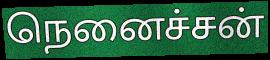
நெனைச்சன்